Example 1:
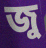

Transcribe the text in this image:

জু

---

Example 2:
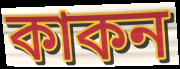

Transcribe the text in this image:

কাকন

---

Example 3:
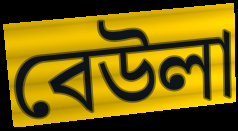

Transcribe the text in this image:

বেউলা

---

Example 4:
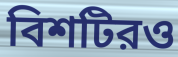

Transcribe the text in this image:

বিশটিরও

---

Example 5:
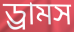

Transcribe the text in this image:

ড্রামস